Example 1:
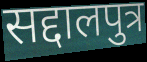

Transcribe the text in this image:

सद्दालपुत्र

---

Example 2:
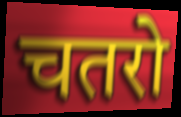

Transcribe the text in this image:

चतरो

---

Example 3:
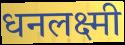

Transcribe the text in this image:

धनलक्ष्मी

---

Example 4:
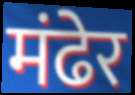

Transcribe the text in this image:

मंढेर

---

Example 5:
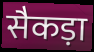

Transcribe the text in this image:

सैकड़ा